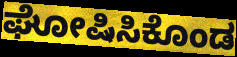
ಘೋಷಿಸಿಕೊಂಡ